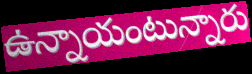
ఉన్నాయంటున్నారు